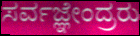
ಸರ್ವಜ್ಞೇಂದ್ರರು